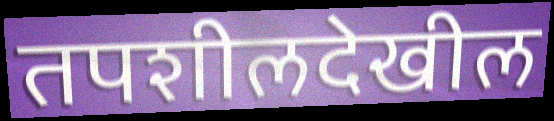
तपशीलदेखील